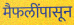
मैफलींपासून